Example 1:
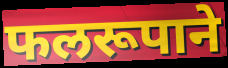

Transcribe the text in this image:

फलरूपाने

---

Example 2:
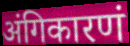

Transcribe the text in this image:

अंगिकारणं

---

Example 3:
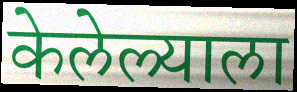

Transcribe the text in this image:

केलेल्याला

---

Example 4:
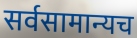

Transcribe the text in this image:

सर्वसामान्यच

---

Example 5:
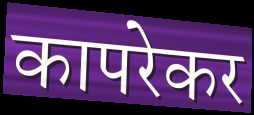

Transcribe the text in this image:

कापरेकर